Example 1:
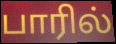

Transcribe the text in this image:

பாரில்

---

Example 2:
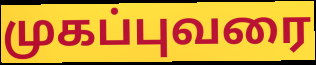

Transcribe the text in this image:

முகப்புவரை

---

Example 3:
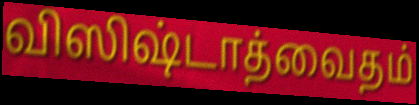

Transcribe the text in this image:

விஸிஷ்டாத்வைதம்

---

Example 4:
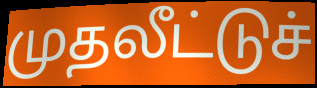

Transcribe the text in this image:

முதலீட்டுச்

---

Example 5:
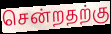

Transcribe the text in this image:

சென்றதற்கு